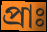
প্রাঃ